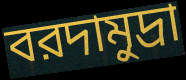
বরদামুদ্রা